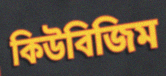
কিউবিজিম